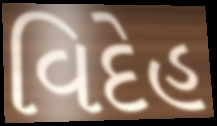
વિદેહ